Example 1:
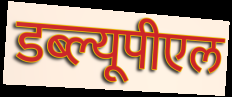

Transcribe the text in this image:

डब्ल्यूपीएल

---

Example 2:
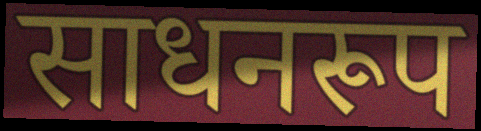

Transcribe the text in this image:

साधनरूप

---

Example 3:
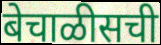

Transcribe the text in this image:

बेचाळीसची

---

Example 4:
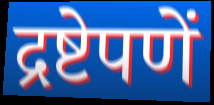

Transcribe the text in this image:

द्रष्टेपणें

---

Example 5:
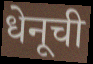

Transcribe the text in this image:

धेनूची